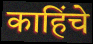
काहिंचे